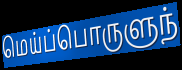
மெய்ப்பொருளுந்